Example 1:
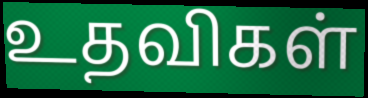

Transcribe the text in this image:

உதவிகள்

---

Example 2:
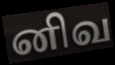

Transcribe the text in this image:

னிவ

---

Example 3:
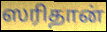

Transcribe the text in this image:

ஸரிதான்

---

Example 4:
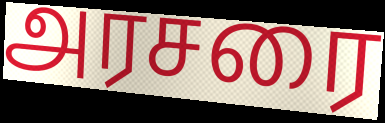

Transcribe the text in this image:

அரசரை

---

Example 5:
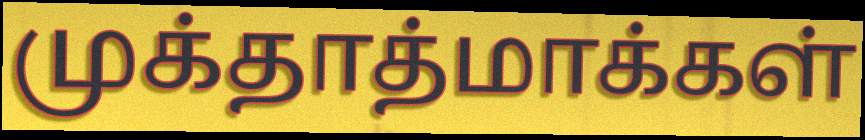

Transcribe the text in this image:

முக்தாத்மாக்கள்